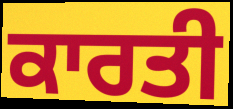
ਕਾਰਤੀ